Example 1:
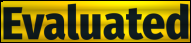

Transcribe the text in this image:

Evaluated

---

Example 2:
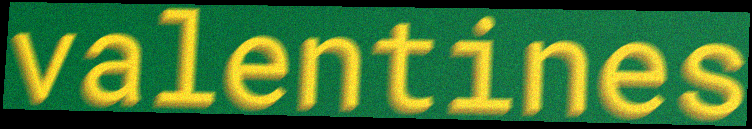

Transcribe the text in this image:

valentines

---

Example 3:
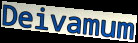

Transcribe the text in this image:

Deivamum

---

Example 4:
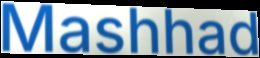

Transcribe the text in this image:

Mashhad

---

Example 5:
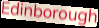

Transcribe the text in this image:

Edinborough